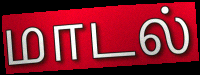
மாடல்